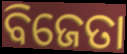
ବିଜେତା